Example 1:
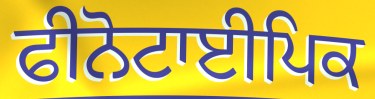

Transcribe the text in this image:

ਫੀਨੋਟਾਈਪਿਕ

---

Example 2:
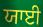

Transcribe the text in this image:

ਯਾਈ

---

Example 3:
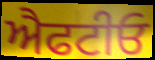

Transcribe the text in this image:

ਐਫਟੀਓ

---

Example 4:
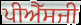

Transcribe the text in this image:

ਪੀਐੱਸਜੀ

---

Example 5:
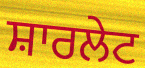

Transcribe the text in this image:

ਸ਼ਾਰਲੇਟ